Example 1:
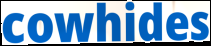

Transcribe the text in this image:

cowhides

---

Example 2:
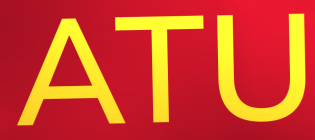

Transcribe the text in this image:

ATU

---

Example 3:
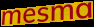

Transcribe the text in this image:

mesma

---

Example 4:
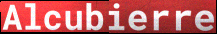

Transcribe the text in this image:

Alcubierre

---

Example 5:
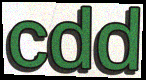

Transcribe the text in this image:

cdd